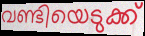
വണ്ടിയെടുക്ക്